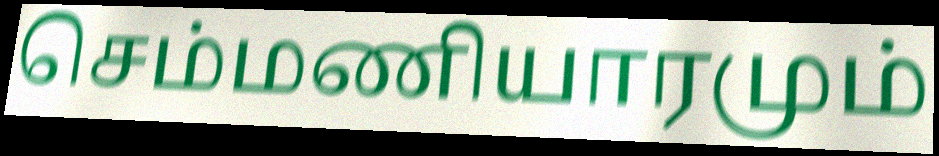
செம்மணியாரமும்